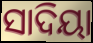
ସାଦିୟା